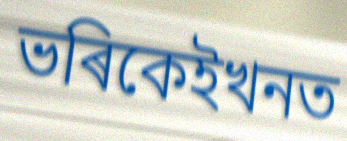
ভৰিকেইখনত